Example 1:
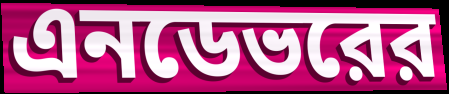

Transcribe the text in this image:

এনডেভরের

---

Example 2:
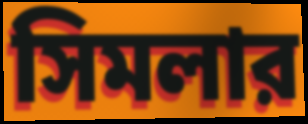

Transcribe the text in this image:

সিমলার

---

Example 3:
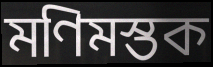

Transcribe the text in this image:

মণিমস্তক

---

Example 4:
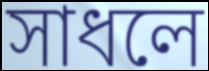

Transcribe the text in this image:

সাধলে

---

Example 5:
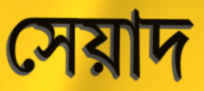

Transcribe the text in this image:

সেয়াদ